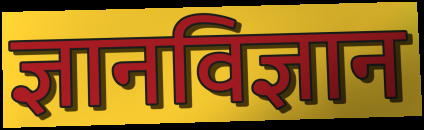
ज्ञानविज्ञान